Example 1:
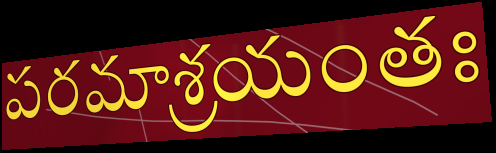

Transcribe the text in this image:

పరమాశ్రయంతః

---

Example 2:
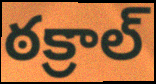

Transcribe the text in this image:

ఠక్రాల్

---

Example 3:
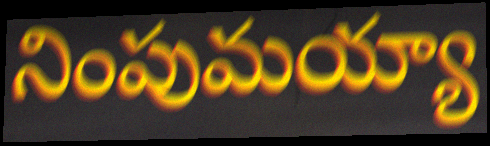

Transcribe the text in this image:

నింపుమయ్యా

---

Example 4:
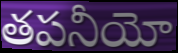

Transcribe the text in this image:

తపనీయో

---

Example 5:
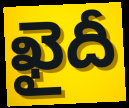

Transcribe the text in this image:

ఖైదీ